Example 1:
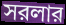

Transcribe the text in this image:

সরলার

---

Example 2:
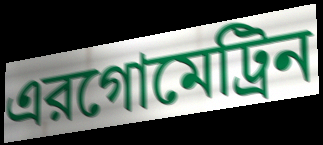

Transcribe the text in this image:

এরগোমেট্রিন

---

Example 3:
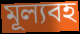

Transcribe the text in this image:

মূল্যবহ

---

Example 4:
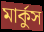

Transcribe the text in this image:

মার্কুস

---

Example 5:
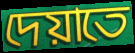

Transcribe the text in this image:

দেয়াতে